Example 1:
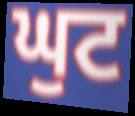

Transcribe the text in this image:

ਘੁਟ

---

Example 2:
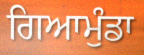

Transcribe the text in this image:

ਗਿਆਮੁੰਡਾ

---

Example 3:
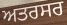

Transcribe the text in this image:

ਅਤਰਸਰ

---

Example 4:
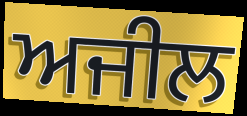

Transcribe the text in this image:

ਅਜੀਲ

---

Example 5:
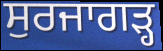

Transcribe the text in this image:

ਸੁਰਜਾਗੜ੍ਹ